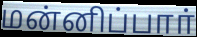
மன்னிப்பார்